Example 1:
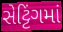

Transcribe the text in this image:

સેટ્ટિંગમાં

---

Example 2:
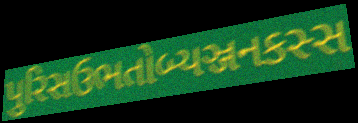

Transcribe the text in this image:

પુરિસઉભતોબ્યઞ્જનકસ્સ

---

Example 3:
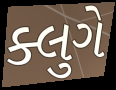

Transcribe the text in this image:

ક્લુગે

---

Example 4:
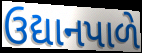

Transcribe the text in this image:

ઉદ્યાનપાળે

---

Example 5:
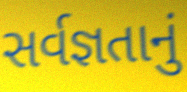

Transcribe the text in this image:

સર્વજ્ઞતાનું